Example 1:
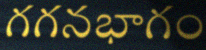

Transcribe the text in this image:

గగనభాగం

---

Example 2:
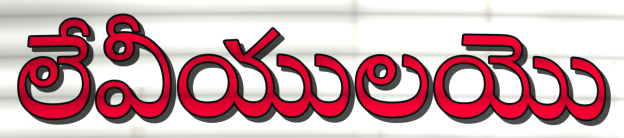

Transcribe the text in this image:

లేవీయులయొ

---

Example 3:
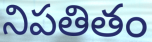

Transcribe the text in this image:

నిపతితం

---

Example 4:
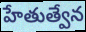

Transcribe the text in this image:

హేతుత్వేన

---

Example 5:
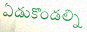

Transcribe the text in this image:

ఏడుకొండల్ని